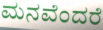
ಮನವೆಂದರೆ